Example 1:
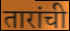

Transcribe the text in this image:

तारांची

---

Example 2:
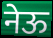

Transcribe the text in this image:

नेऊ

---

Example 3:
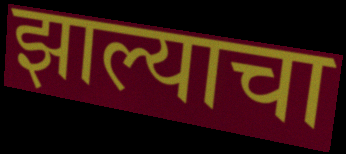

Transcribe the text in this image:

झाल्‍याचा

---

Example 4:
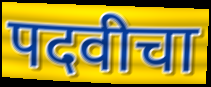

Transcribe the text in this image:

पदवीचा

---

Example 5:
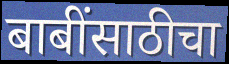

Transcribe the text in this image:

बाबींसाठीचा